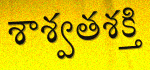
శాశ్వతశక్తి